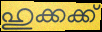
ഹുക്കക്ക്